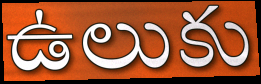
ఉలుకు